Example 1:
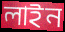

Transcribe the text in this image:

লাইন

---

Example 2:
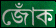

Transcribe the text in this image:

জোঁক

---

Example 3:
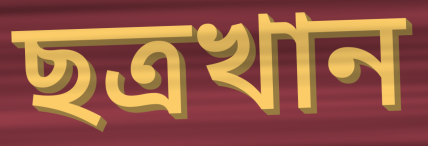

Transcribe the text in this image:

ছত্রখান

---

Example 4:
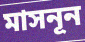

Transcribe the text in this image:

মাসনূন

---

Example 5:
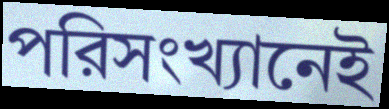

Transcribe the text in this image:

পরিসংখ্যানেই